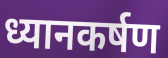
ध्यानकर्षण